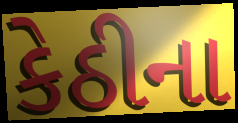
કેઠીના